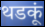
थडकूं